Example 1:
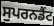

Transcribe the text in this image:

ਸੁਪਰਨਡੈਂਟ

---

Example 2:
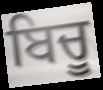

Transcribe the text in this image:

ਬਿਚੂ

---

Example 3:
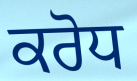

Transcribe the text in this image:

ਕਰੋਧ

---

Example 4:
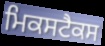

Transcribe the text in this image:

ਮਿਕਸਟੈਕਸ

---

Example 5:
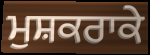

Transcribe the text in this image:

ਮੁਸ਼ਕਰਾਕੇ